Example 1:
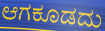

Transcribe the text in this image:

ಆಗಕೂಡದು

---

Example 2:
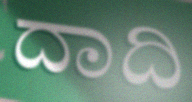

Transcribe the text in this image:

ದಾದಿ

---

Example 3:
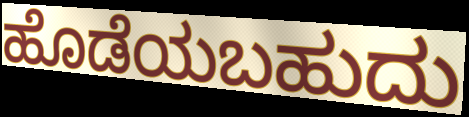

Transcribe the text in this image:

ಹೊಡೆಯಬಹುದು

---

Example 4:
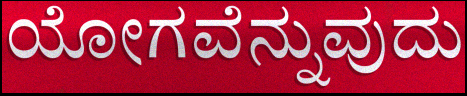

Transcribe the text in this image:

ಯೋಗವೆನ್ನುವುದು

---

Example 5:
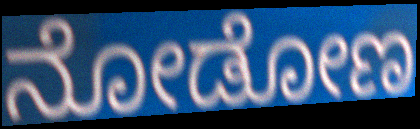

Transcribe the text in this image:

ನೋಡೋಣ